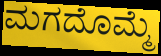
ಮಗದೊಮ್ಮೆ